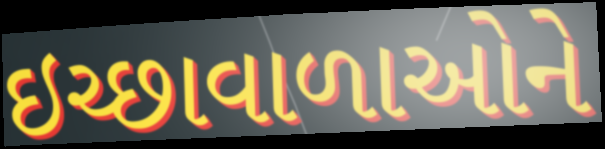
ઇચ્છાવાળાઓને